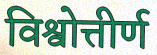
विश्वोत्तीर्ण